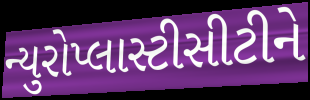
ન્યુરોપ્લાસ્ટીસીટીને